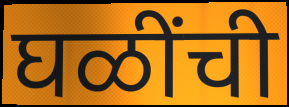
घळींची